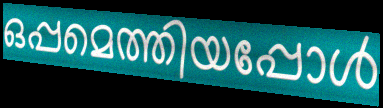
ഒപ്പമെത്തിയപ്പോൾ